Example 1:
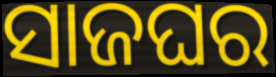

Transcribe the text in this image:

ସାଜଘର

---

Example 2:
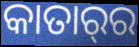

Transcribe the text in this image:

କାତାର୍‌ର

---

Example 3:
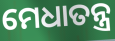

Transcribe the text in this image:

ମେଧାତନ୍ତ୍ର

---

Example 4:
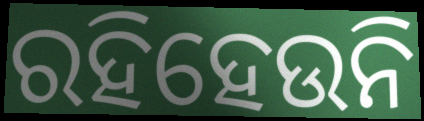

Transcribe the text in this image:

ରହିହେଉନି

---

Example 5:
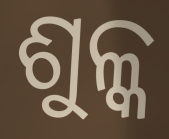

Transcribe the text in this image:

ଶୁଳ୍କ